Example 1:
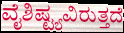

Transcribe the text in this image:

ವೈಶಿಷ್ಟ್ಯವಿರುತ್ತದೆ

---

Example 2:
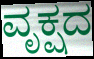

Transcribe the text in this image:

ವೃಕ್ಷದ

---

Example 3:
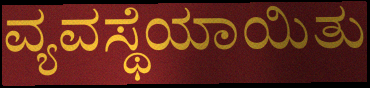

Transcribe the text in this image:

ವ್ಯವಸ್ಥೆಯಾಯಿತು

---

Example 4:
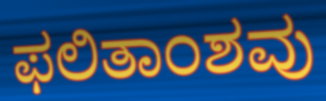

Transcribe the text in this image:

ಫಲಿತಾಂಶವು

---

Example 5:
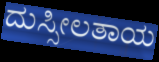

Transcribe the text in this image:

ದುಸ್ಸೀಲತಾಯ